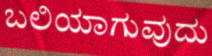
ಬಲಿಯಾಗುವುದು